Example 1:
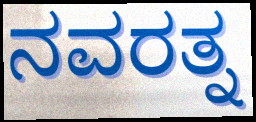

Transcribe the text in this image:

ನವರತ್ನ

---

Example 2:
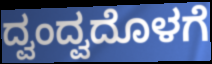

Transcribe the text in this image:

ದ್ವಂದ್ವದೊಳಗೆ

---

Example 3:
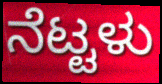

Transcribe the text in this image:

ನೆಟ್ಟಳು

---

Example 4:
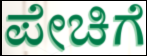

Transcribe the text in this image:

ಪೇಚಿಗೆ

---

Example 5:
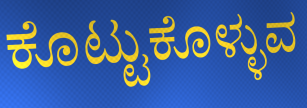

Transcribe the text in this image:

ಕೊಟ್ಟುಕೊಳ್ಳುವ